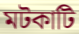
মটকাটি